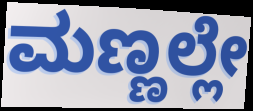
ಮಣ್ಣಲ್ಲೇ